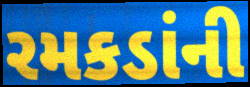
રમકડાંની